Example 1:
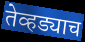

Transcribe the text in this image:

तेव्हड्याच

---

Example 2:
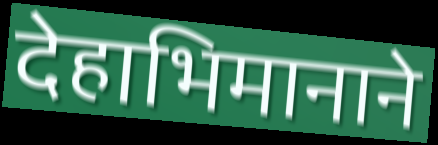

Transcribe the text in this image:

देहाभिमानाने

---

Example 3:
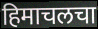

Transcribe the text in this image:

हिमाचलचा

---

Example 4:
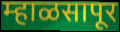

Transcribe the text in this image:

म्हाळसापूर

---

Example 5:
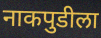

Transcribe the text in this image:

नाकपुडीला